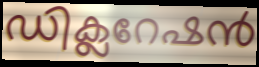
ഡിക്ലറേഷൻ